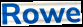
Rowe